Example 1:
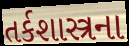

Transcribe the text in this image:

તર્કશાસ્ત્રના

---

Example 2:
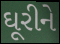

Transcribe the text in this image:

ઘૂરીને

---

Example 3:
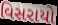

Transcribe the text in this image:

વિસરાયો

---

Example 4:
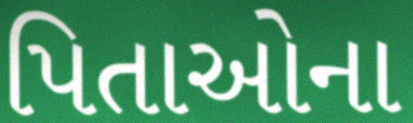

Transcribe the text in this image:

પિતાઓના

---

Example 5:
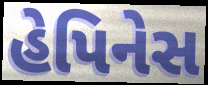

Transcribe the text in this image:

હેપિનેસ